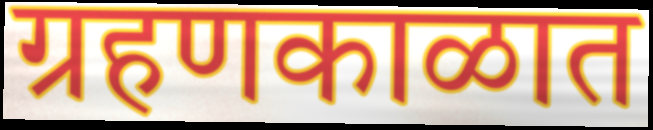
ग्रहणकाळात